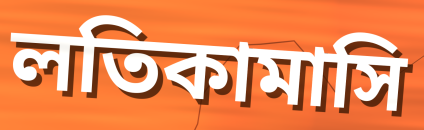
লতিকামাসি